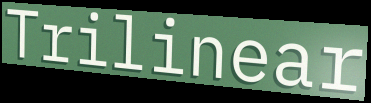
Trilinear